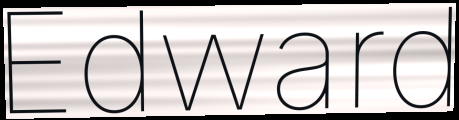
Edward